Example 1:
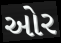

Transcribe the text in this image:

ઓર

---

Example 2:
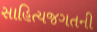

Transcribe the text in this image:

સાહિત્યજગતની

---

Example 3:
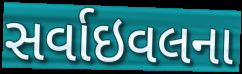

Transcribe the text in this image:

સર્વાઇવલના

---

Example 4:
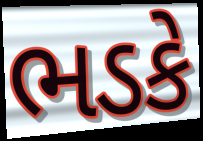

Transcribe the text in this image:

ભડકે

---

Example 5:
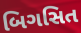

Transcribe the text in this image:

બિગસિત